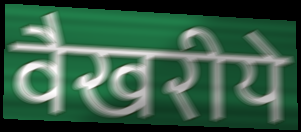
वैखरीये